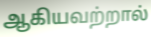
ஆகியவற்றால்